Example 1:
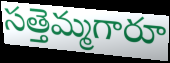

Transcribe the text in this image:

సత్తెమ్మగారూ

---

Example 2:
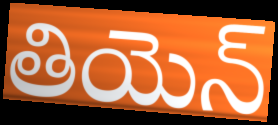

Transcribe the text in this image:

తియెన్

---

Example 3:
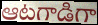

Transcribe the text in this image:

ఆటగాడిగా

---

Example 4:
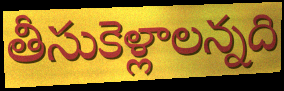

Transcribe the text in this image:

తీసుకెళ్లాలన్నది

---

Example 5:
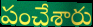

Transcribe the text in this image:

పంచేశారు